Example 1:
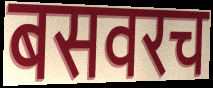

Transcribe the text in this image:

बसवरच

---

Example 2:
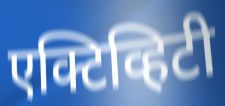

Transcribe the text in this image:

एक्टिव्हिटी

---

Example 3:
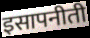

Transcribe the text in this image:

इसापनीती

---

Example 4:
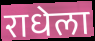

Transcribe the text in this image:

राधेला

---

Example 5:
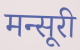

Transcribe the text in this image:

मन्सूरी